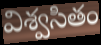
విశ్వసితం